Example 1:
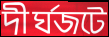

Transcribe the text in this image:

দীর্ঘজটে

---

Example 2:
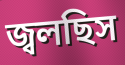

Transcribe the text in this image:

জ্বলছিস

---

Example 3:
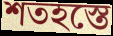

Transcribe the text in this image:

শতহস্তে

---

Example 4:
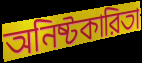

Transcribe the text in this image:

অনিষ্টকারিতা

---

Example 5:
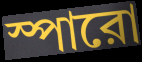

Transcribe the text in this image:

স্পারো